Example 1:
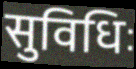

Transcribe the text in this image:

सुविधिः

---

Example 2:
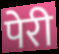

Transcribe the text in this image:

पेरी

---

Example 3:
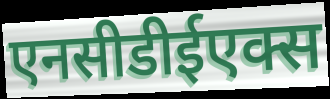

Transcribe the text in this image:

एनसीडीईएक्स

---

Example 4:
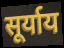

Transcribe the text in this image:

सूर्याय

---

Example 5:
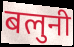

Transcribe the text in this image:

बलुनी